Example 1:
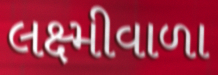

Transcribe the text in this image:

લક્ષ્મીવાળા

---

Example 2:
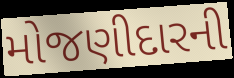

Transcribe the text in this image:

મોજણીદારની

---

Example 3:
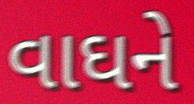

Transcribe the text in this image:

વાઘને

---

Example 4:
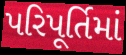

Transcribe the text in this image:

પરિપૂર્તિમાં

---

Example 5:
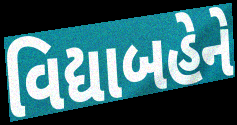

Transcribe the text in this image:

વિદ્યાબહેને